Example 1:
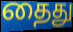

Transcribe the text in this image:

தைது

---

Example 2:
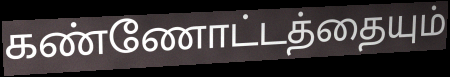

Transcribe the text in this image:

கண்ணோட்டத்தையும்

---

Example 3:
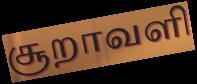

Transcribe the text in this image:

சூறாவளி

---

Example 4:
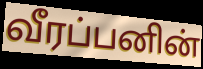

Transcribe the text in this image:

வீரப்பனின்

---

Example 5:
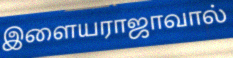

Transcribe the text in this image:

இளையராஜாவால்